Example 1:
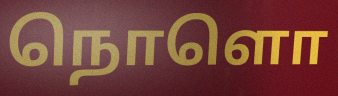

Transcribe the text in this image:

நொளொ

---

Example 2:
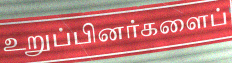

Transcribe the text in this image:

உறுப்பினர்களைப்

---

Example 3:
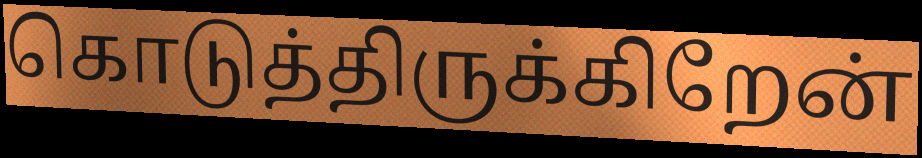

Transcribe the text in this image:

கொடுத்திருக்கிறேன்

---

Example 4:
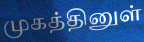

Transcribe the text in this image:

முகத்தினுள்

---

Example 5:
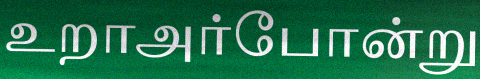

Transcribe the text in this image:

உறாஅர்போன்று